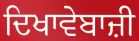
ਦਿਖਾਵੇਬਾਜ਼ੀ